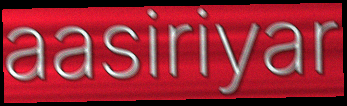
aasiriyar